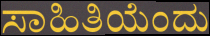
ಸಾಹಿತಿಯೆಂದು